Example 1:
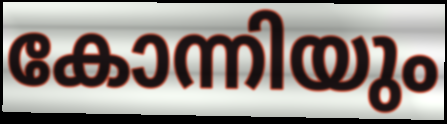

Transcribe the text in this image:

കോന്നിയും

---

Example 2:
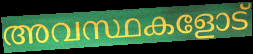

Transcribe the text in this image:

അവസ്ഥകളോട്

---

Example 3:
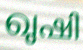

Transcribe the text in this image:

ഖുഷി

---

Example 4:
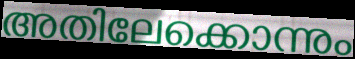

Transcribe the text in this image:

അതിലേക്കൊന്നും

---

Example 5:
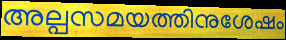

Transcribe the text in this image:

അല്പസമയത്തിനുശേഷം